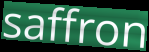
saffron